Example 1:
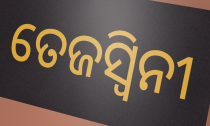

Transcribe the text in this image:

ତେଜସ୍ଵିନୀ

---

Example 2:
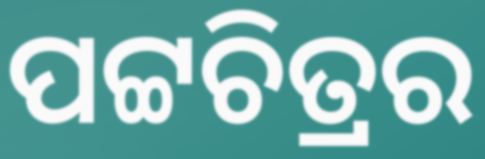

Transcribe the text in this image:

ପଟ୍ଟଚିତ୍ରର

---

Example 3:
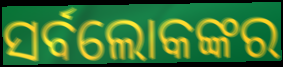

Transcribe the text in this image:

ସର୍ବଲୋକଙ୍କର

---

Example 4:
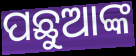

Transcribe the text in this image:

ପଛୁଆଙ୍କ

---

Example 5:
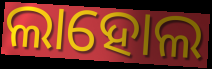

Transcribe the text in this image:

ଲାହୋଲ